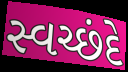
સ્વચ્છંદે